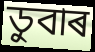
ডুবাৰ